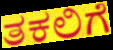
ತಕಲಿಗೆ